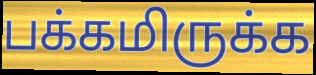
பக்கமிருக்க